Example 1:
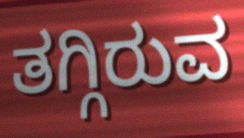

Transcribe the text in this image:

ತಗ್ಗಿರುವ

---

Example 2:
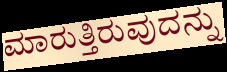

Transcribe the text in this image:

ಮಾರುತ್ತಿರುವುದನ್ನು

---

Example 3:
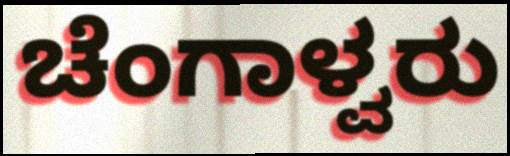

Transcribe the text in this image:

ಚೆಂಗಾಳ್ವರು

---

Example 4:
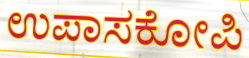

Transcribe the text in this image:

ಉಪಾಸಕೋಪಿ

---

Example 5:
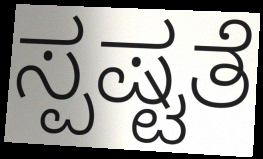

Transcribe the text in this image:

ಸ್ಪಷ್ಟತೆ